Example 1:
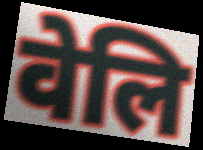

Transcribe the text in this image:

वेलि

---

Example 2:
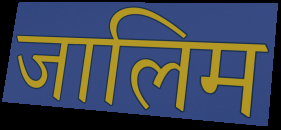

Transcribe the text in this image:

जालिम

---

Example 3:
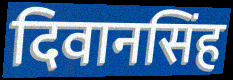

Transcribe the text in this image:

दिवानसिंह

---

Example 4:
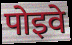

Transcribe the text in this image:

पोइवे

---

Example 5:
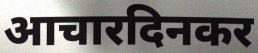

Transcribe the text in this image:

आचारदिनकर